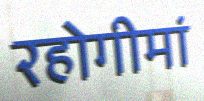
रहोगीमां